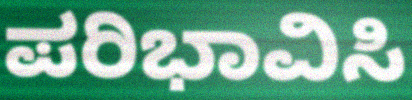
ಪರಿಭಾವಿಸಿ